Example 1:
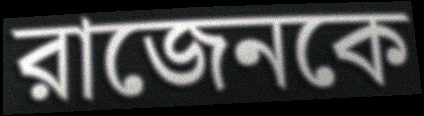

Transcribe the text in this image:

রাজেনকে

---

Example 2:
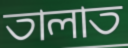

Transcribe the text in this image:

তালাত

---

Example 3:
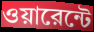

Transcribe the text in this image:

ওয়ারেন্টে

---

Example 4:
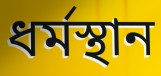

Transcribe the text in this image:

ধর্মস্থান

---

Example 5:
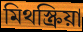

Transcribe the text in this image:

মিথস্ক্রিয়া